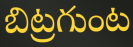
బిట్రగుంట